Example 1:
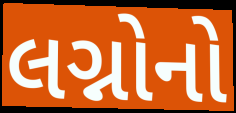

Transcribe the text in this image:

લગ્નોનો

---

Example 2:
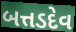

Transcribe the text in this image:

બત્તડદેવ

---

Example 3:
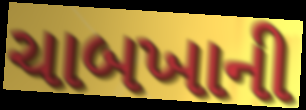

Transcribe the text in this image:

ચાબખાની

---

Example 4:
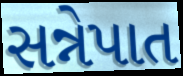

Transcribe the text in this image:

સન્નેપાત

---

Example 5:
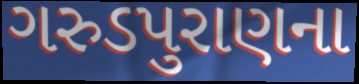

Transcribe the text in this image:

ગરુડપુરાણના